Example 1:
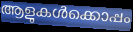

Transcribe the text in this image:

ആളുകൾക്കൊപ്പം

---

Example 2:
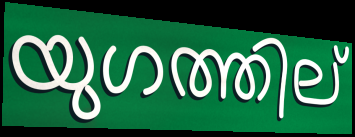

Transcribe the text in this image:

യുഗത്തില്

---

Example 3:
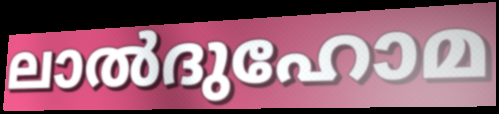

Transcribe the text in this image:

ലാൽദുഹോമ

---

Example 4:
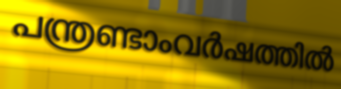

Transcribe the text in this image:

പന്ത്രണ്ടാംവർഷത്തിൽ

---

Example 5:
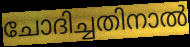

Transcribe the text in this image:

ചോദിച്ചതിനാൽ